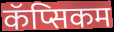
कॅप्सिकम